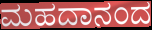
ಮಹದಾನಂದ